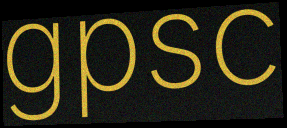
gpsc